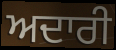
ਅਦਾਰੀ